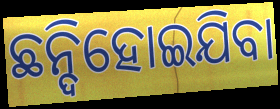
ଛନ୍ଦିହୋଇଯିବା